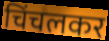
चिंचलकर